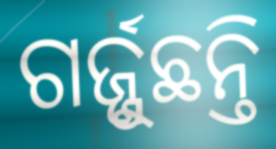
ଗର୍ଜ୍ଜୁଛନ୍ତି